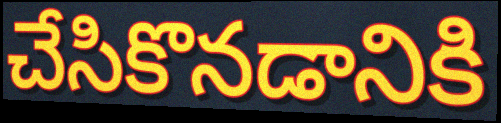
చేసికొనడానికి